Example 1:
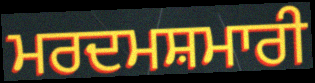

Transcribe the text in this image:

ਮਰਦਮਸ਼ਮਾਰੀ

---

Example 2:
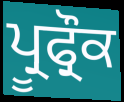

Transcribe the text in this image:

ਪ੍ਰੂਫ੍ਰੌਕ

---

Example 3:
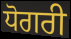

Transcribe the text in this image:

ਧੋਗਰੀ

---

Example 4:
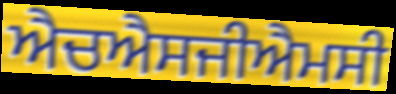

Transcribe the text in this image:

ਐਚਐਸਜੀਐਮਸੀ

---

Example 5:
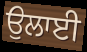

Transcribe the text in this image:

ਉਲਾਈ